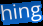
hing